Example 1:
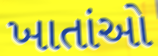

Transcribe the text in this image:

ખાતાંઓ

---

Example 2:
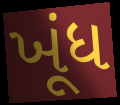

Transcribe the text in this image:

ખૂંધ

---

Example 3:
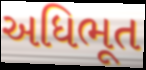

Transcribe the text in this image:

અધિભૂત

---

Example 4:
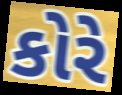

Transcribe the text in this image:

કોરે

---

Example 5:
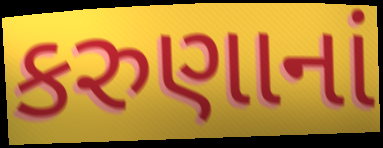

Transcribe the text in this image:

કરુણાનાં